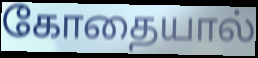
கோதையால்